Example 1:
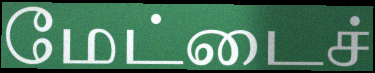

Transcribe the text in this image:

மேட்டைச்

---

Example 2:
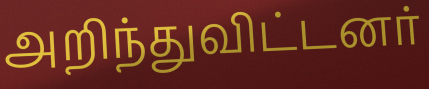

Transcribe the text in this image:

அறிந்துவிட்டனர்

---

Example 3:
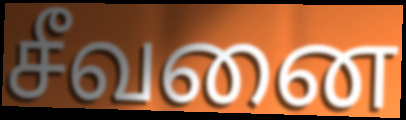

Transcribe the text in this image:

சீவனை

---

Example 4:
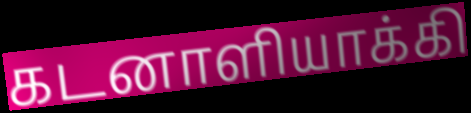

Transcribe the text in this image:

கடனாளியாக்கி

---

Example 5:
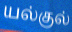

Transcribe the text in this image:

யல்குல்